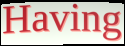
Having